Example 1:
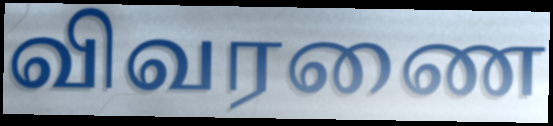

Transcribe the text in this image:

விவரணை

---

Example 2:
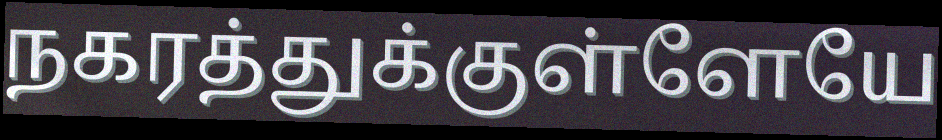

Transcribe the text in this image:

நகரத்துக்குள்ளேயே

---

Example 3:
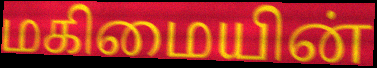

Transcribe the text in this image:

மகிமையின்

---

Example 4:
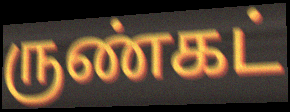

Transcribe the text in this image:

ருண்கட்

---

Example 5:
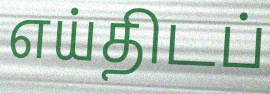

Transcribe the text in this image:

எய்திடப்